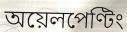
অয়েলপেণ্টিং